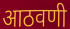
आठवणी